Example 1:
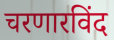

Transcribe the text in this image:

चरणारविंद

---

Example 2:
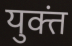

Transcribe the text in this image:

युक्तं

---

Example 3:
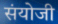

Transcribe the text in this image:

संयोजी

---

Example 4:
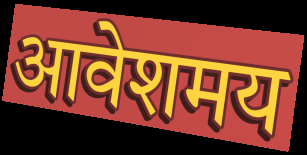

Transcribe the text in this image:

आवेशमय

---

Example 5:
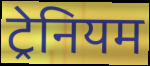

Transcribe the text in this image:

ट्रेनियम